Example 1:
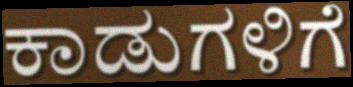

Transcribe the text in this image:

ಕಾಡುಗಳಿಗೆ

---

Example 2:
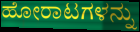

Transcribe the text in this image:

ಹೋರಾಟಗಳನ್ನು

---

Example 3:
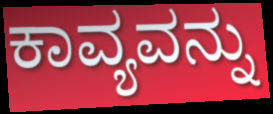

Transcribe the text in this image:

ಕಾವ್ಯವನ್ನು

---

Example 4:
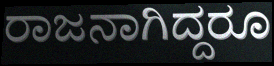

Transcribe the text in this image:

ರಾಜನಾಗಿದ್ದರೂ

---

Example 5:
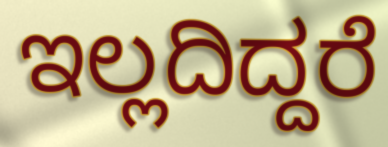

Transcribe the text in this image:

ಇಲ್ಲದಿದ್ದರೆ